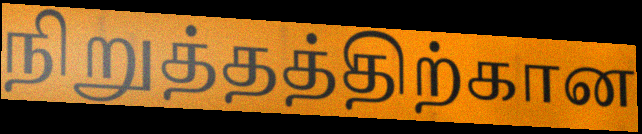
நிறுத்தத்திற்கான